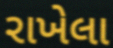
રાખેલા